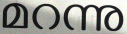
മറന്നു